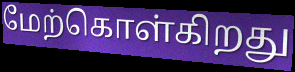
மேற்கொள்கிறது